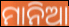
ମାନିଆ